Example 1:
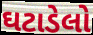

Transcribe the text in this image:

ઘટાડેલો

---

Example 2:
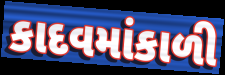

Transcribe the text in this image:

કાદવમાંકાળી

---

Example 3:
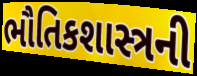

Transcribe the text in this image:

ભૌતિકશાસ્ત્રની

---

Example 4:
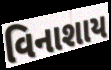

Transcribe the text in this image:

વિનાશાય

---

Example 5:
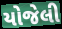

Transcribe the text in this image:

યોજેલી